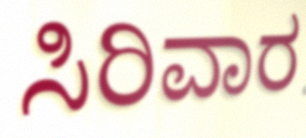
ಸಿರಿವಾರ